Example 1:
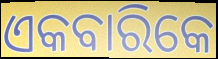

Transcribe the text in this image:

ଏକବାରିକେ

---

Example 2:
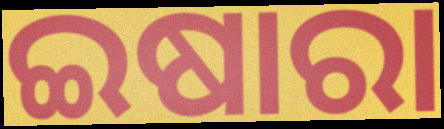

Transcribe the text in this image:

ଇଷାରା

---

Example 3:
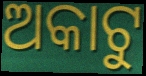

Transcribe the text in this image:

ଅକାଟୁ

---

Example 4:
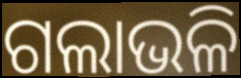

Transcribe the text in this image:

ଗଲାଭଳି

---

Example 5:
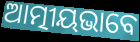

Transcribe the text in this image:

ଆତ୍ମୀୟଭାବେ